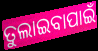
ତୁଲାଇବାପାଇଁ